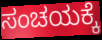
ಸಂಚಯಕ್ಕೆ